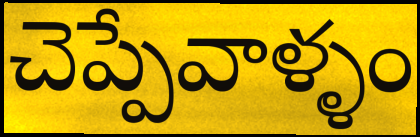
చెప్పేవాళ్ళం